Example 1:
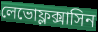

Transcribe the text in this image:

লেভোফ্লক্সাসিন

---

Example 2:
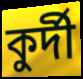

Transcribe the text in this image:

কুর্দী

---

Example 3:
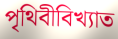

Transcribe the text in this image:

পৃথিবীবিখ্যাত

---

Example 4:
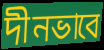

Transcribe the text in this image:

দীনভাবে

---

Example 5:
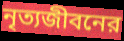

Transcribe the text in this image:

নৃত্যজীবনের